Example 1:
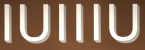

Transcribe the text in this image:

IUIIIU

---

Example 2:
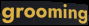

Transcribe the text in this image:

grooming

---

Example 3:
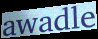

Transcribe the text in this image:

awadle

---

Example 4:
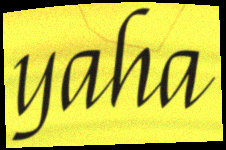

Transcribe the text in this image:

yaha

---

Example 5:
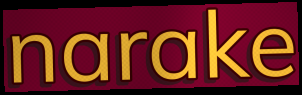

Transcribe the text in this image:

narake